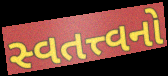
સ્વતત્ત્વનો